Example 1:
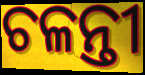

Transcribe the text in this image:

ଚଳନ୍ତୀ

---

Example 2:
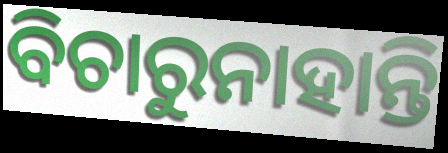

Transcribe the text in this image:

ବିଚାରୁନାହାନ୍ତି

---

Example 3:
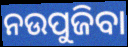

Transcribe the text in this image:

ନଉପୁଜିବା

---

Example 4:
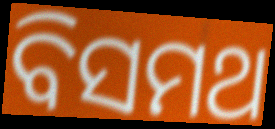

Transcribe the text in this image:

ବିସମଥ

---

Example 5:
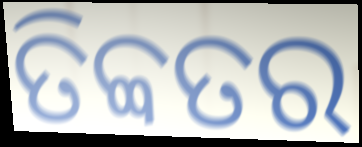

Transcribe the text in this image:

ତିବ୍ବତର